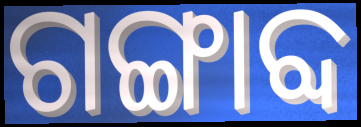
ଗଙ୍ଗାବ୍ଦ